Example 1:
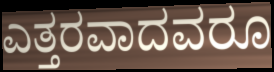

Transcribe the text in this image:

ಎತ್ತರವಾದವರೂ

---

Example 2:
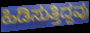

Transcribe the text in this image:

ಹಿಡಿಸುತ್ತಿದ್ದವು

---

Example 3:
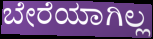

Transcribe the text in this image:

ಬೇರೆಯಾಗಿಲ್ಲ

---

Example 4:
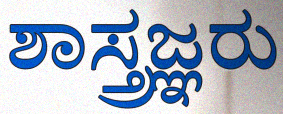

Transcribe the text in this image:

ಶಾಸ್ತ್ರಜ್ಞರು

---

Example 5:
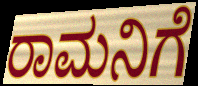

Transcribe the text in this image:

ರಾಮನಿಗೆ